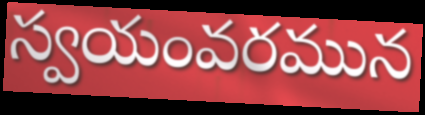
స్వయంవరమున